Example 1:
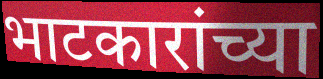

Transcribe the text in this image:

भाटकारांच्या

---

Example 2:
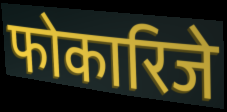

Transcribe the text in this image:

फोकारिजे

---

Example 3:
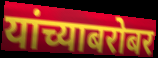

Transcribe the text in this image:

यांच्याबरोबर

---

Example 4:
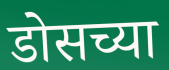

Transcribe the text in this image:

डोसच्या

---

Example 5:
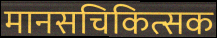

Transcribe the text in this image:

मानसचिकित्सक